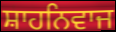
ਸ਼ਾਹਨਿਵਾਜ